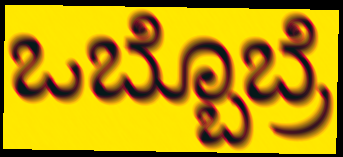
ಒಬ್ಬೊಬ್ರೆ